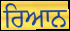
ਰਿਆਨ